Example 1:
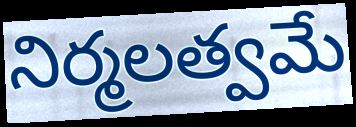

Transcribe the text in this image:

నిర్మలత్వమే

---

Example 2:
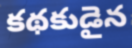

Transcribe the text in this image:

కథకుడైన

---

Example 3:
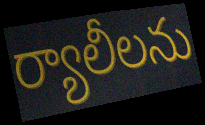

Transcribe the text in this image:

ర్యాలీలను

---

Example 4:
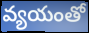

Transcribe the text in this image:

వ్యయంతో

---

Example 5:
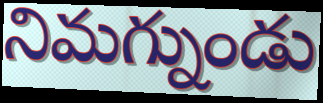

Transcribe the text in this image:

నిమగ్నుండు